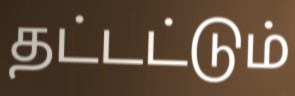
தட்டட்டும்